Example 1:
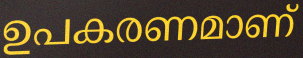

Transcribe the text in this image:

ഉപകരണമാണ്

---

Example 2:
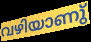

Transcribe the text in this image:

വഴിയാണു്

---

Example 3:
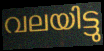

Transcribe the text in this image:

വലയിട്ടു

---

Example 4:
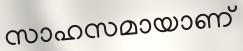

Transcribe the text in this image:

സാഹസമായാണ്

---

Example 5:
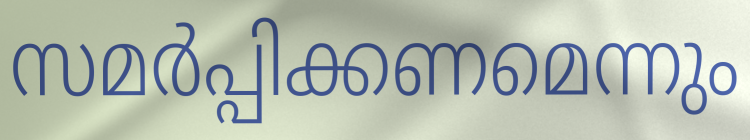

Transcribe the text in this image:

സമർപ്പിക്കണമെന്നും